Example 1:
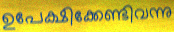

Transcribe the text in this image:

ഉപേക്ഷിക്കേണ്ടിവന്നു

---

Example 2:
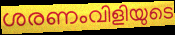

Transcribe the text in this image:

ശരണംവിളിയുടെ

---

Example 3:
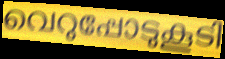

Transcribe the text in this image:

വെറുപ്പോടുകൂടി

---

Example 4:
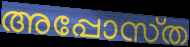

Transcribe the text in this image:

അപ്പോസ്‌ത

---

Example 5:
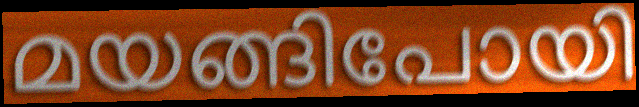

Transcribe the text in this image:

മയങ്ങിപോയി